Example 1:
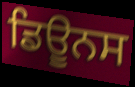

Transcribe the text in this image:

ਡਿਊਨਸ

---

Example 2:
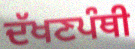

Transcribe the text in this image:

ਦੱਖਣਪੰਥੀ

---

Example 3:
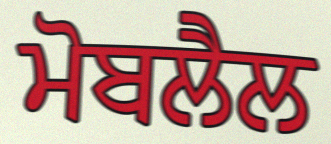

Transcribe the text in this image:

ਮੋਬਲੈਲ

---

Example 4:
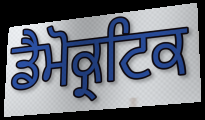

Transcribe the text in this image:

ਡੈਮੋਕ੍ਰਟਿਕ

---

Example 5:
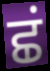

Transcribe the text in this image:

ਛਂ